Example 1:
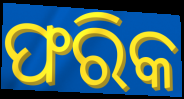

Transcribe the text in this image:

ଫରିକ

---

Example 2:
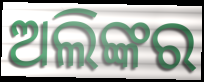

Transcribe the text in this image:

ଅଲିଙ୍କର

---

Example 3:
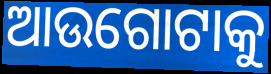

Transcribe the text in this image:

ଆଉଗୋଟାକୁ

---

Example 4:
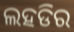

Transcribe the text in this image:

ଲହଡିର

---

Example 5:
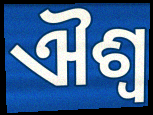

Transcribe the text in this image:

ଐଶ୍ୱ